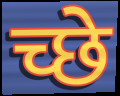
च्छे